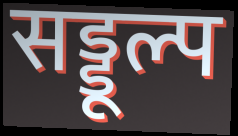
सड्डूल्प